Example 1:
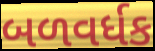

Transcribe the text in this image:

બળવર્ધક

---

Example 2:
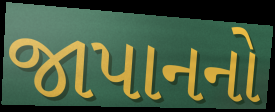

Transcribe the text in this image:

જાપાનનો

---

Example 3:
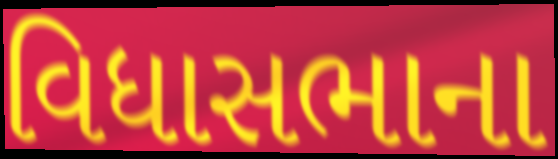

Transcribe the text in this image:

વિધાસભાના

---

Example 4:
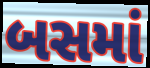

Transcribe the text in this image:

બસમાં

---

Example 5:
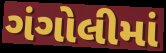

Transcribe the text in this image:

ગંગોલીમાં